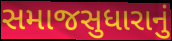
સમાજસુધારાનું